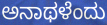
ಅನಾಥಳೆಂದು